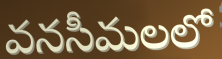
వనసీమలలో